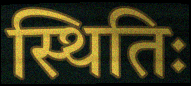
स्थितिः